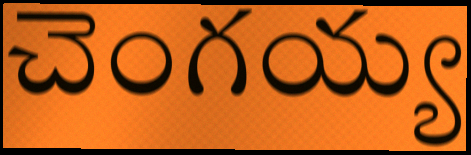
చెంగయ్య